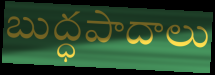
బుద్ధపాదాలు